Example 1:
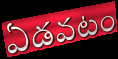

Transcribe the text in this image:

ఏడవటం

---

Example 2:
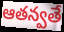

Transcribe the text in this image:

ఆతన్వతే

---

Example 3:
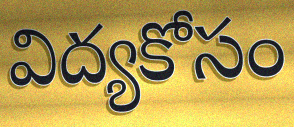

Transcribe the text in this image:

విద్యకోసం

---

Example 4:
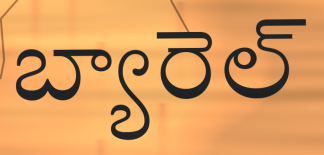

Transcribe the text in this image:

బ్యారెల్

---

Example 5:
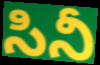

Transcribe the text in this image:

సినీ